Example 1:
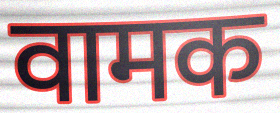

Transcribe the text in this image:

वामक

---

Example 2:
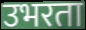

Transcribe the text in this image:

उभरता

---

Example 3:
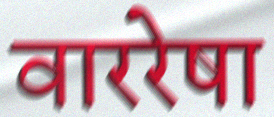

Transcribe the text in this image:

वाररेषा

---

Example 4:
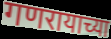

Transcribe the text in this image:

गणरायाच्या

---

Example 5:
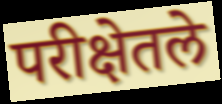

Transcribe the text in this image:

परीक्षेतले